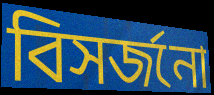
বিসৰ্জনো